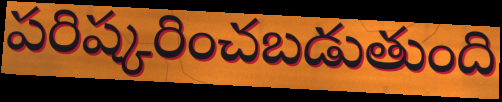
పరిష్కరించబడుతుంది